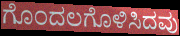
ಗೊಂದಲಗೊಳಿಸಿದವು